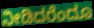
ನೀಡಿದರೆಂದೂ